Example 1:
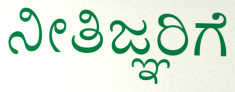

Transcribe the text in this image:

ನೀತಿಜ್ಞರಿಗೆ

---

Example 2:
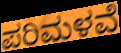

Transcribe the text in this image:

ಪರಿಮಳವೆ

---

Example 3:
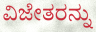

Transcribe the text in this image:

ವಿಜೇತರನ್ನು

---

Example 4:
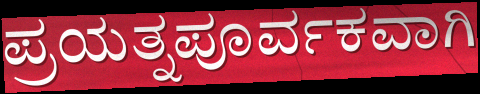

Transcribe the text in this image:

ಪ್ರಯತ್ನಪೂರ್ವಕವಾಗಿ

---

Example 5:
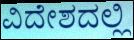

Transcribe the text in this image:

ವಿದೇಶದಲ್ಲಿ